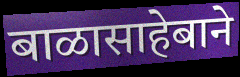
बाळासाहेबाने